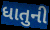
ધાતુની